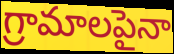
గ్రామాలపైనా